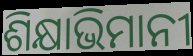
ଶିକ୍ଷାଭିମାନୀ